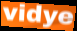
vidye